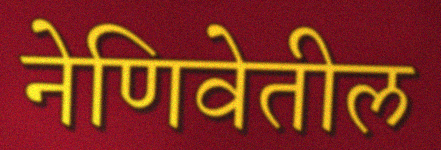
नेणिवेतील